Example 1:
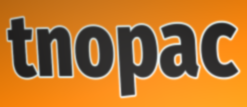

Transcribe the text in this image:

tnopac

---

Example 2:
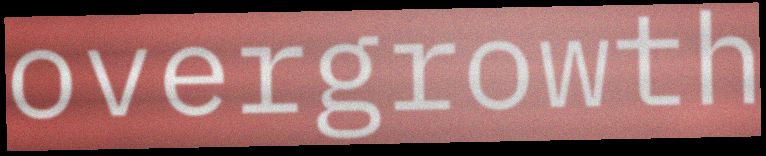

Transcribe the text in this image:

overgrowth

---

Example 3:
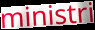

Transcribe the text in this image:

ministri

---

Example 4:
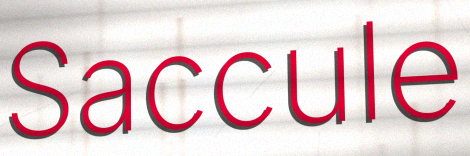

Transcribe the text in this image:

Saccule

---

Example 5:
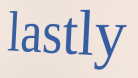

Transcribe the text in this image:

lastly